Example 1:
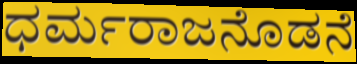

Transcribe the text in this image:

ಧರ್ಮರಾಜನೊಡನೆ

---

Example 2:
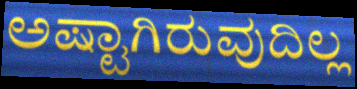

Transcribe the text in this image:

ಅಷ್ಟಾಗಿರುವುದಿಲ್ಲ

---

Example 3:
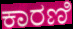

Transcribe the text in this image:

ಕಾರಣಿ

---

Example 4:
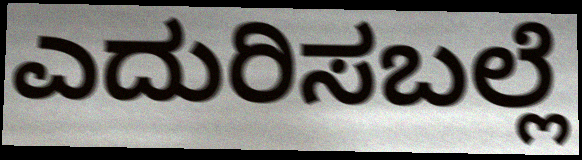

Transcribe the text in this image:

ಎದುರಿಸಬಲ್ಲೆ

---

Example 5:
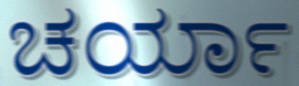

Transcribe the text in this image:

ಚರ್ಯಾ